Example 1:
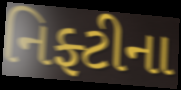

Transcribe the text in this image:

નિફ્ટીના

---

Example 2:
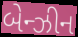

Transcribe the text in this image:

બેન્ઝીન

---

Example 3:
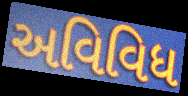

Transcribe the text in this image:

અવિવિધ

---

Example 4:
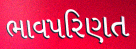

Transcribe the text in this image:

ભાવપરિણત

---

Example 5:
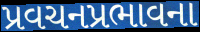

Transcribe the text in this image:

પ્રવચનપ્રભાવના